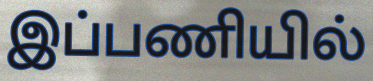
இப்பணியில்